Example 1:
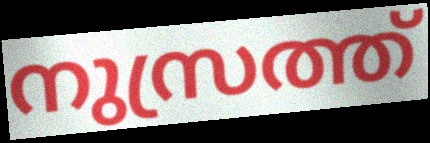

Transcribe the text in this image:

നുസ്രത്ത്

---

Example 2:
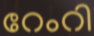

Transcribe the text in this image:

റേംറി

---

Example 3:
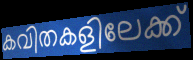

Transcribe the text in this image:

കവിതകളിലേക്ക്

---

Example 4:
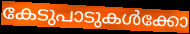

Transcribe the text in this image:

കേടുപാടുകൾക്കോ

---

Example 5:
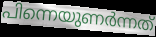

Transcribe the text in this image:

പിന്നെയുണർന്നത്